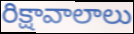
రిక్షావాలాలు